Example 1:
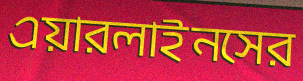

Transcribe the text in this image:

এয়ারলাইনসের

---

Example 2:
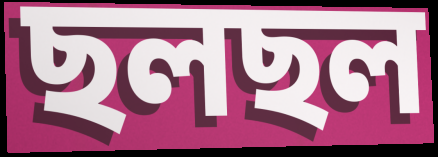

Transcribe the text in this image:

ছলছল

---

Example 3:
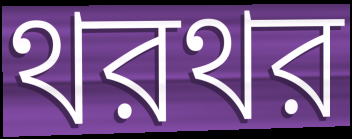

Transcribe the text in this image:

থরথর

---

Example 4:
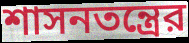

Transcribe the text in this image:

শাসনতন্ত্রের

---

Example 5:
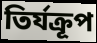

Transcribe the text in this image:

তির্যক্রূপ